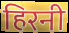
हिरनी